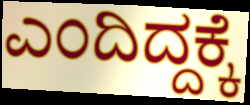
ಎಂದಿದ್ದಕ್ಕೆ